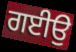
ਗਈਉ